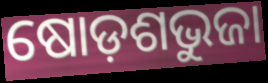
ଷୋଡ଼ଶଭୁଜା